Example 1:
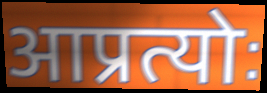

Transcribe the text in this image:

आप्रत्योः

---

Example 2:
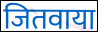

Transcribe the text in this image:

जितवाया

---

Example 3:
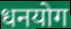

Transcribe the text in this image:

धनयोग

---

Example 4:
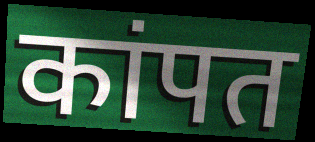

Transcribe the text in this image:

कांपत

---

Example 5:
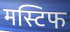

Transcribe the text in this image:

मस्टिफ